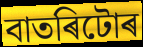
বাতৰিটোৰ